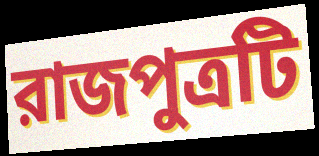
রাজপুত্রটি